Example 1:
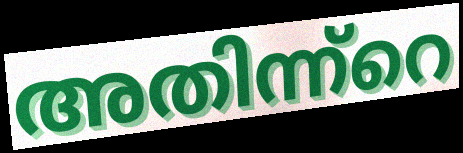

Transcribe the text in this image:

അതിന്ന്റെ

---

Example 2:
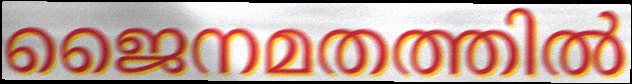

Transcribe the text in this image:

ജൈനമതത്തിൽ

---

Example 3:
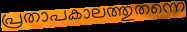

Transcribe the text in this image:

പ്രതാപകാലത്തുതന്നെ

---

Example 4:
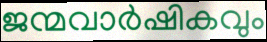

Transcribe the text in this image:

ജന്മവാർഷികവും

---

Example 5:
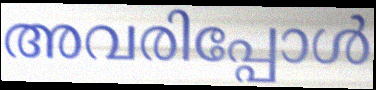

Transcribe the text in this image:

അവരിപ്പോൾ